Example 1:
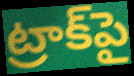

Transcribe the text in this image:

ట్రాక్‌పై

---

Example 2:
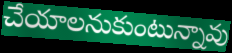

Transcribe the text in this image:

చేయాలనుకుంటున్నావు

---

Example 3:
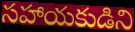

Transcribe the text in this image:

సహాయకుడిని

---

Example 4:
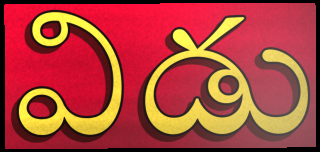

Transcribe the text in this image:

విడు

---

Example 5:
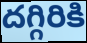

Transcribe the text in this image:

దగ్గిరికి